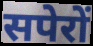
सपेरों